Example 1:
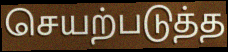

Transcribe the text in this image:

செயற்படுத்த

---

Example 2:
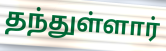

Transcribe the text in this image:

தந்துள்ளார்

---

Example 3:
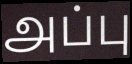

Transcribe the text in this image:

அப்பு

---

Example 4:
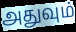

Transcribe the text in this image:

அதுவும்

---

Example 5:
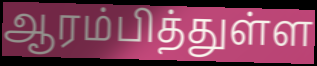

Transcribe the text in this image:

ஆரம்பித்துள்ள